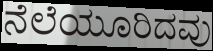
ನೆಲೆಯೂರಿದವು